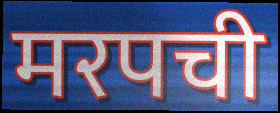
मरपची